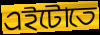
এইটোতে